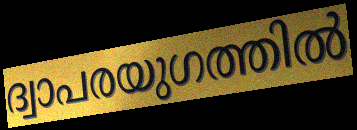
ദ്വാപരയുഗത്തിൽ